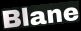
Blane